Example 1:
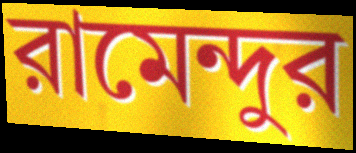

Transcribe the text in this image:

রামেন্দুর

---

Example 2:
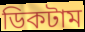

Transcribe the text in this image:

ডিকটাম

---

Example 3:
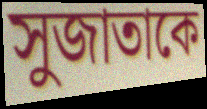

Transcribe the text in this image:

সুজাতাকে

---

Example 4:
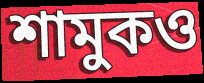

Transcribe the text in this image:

শামুকও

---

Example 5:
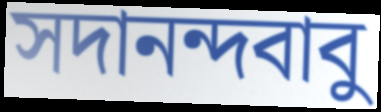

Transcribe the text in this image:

সদানন্দবাবু